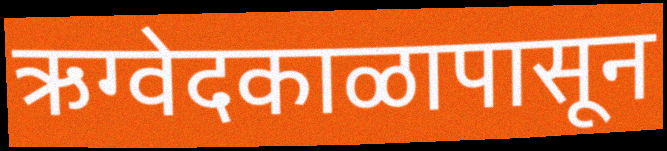
ऋग्वेदकाळापासून